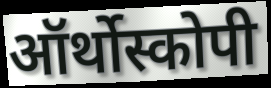
ऑर्थोस्कोपी